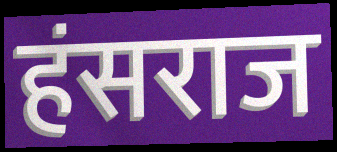
हंसराज